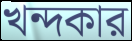
খন্দকার